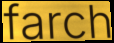
farch